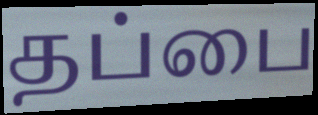
தப்பை